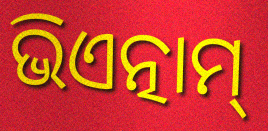
ଭିଏତ୍ନାମ୍